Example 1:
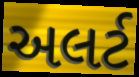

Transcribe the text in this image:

અલર્ટ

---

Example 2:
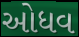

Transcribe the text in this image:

ઓધવ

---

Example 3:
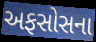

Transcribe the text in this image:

અફસોસના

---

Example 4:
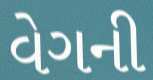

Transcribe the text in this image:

વેગની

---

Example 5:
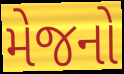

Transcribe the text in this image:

મેજનો